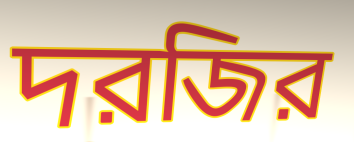
দরজির